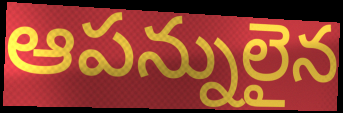
ఆపన్నులైన